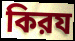
কিরয